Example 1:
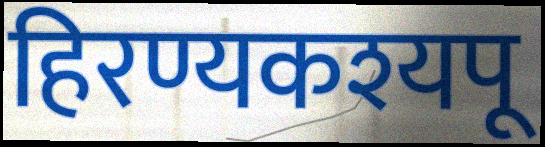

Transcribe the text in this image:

हिरण्यकश्यपू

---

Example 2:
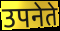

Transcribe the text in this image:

उपनेते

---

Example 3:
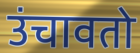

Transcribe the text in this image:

उंचावतो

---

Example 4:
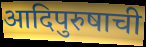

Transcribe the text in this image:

आदिपुरुषाची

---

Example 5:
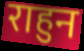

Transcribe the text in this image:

राहुन